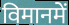
विमानमें